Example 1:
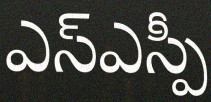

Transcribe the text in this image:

ఎస్ఎస్పీ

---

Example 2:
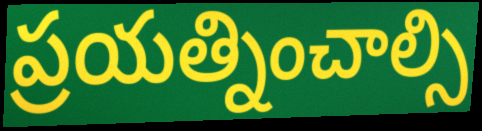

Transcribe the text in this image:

ప్రయత్నించాల్సి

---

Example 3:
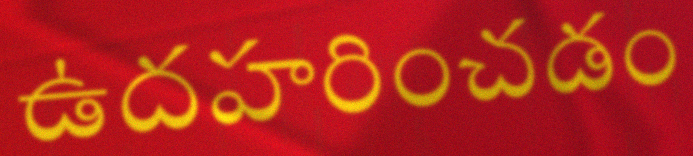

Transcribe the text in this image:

ఉదహరించడం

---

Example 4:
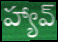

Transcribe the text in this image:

హ్యావ్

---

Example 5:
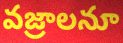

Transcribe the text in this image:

వజ్రాలనూ